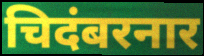
चिदंबरनार